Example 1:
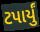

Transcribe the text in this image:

ટપાર્યું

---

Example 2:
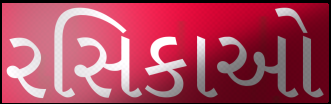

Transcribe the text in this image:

રસિકાઓ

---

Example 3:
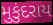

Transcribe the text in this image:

મુકુંદરાય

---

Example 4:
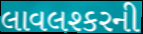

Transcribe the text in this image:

લાવલશ્કરની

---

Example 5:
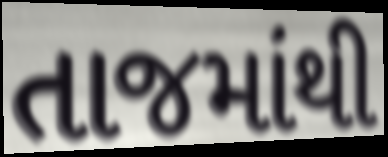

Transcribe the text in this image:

તાજમાંથી